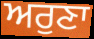
ਅਰੁਣਾ